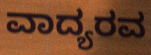
ವಾದ್ಯರವ